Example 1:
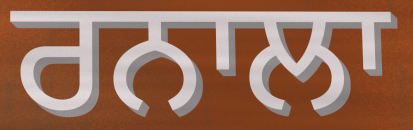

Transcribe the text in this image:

ਰਨਾਲਾ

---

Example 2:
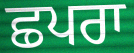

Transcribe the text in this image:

ਛਪਰਾ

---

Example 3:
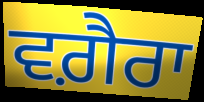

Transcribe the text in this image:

ਵਗ਼ੈਰਾ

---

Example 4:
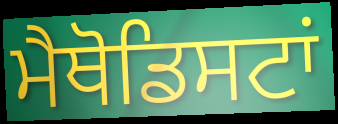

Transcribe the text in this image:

ਮੈਥੋਡਿਸਟਾਂ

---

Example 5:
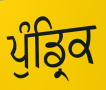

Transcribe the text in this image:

ਪੁੰਡ੍ਰਿਕ